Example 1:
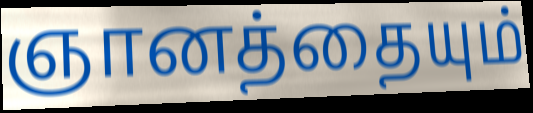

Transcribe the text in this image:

ஞானத்தையும்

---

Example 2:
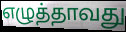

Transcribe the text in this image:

எழுத்தாவது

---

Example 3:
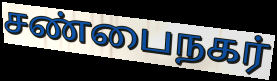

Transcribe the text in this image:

சண்பைநகர்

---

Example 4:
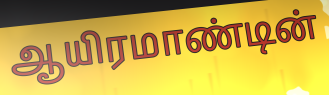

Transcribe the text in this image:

ஆயிரமாண்டின்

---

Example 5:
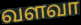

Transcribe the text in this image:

வளவா